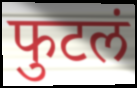
फुटलं